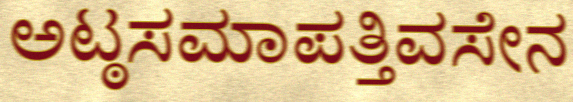
ಅಟ್ಠಸಮಾಪತ್ತಿವಸೇನ